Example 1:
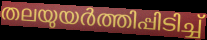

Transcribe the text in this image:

തലയുയർത്തിപ്പിടിച്ച്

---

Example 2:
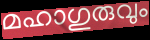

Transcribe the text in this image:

മഹാഗുരുവും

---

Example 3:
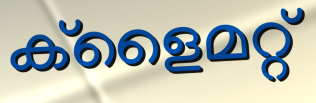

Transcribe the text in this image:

ക്ളൈമറ്റ്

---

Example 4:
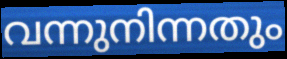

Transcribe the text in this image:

വന്നുനിന്നതും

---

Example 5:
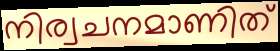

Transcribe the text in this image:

നിര്വചനമാണിത്